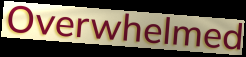
Overwhelmed